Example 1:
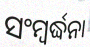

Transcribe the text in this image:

ସଂମ୍ବର୍ଦ୍ଧନା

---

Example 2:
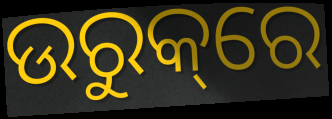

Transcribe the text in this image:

ଉରୁକ୍‌ରେ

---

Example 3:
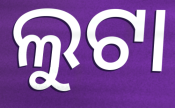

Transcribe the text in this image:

ଲୁଟା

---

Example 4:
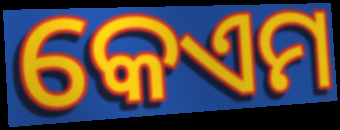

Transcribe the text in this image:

କେଏମ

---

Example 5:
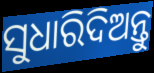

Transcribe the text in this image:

ସୁଧାରିଦିଅନ୍ତୁ